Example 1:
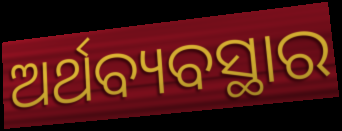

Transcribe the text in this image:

ଅର୍ଥବ୍ୟବସ୍ଥାର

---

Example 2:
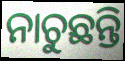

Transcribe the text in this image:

ନାଚୁଛନ୍ତି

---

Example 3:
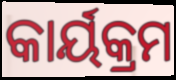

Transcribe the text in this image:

କାର୍ୟକ୍ରମ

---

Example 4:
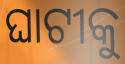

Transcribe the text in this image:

ଘାଟୀକୁ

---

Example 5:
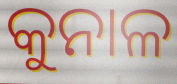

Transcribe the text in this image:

କୁନାଳ